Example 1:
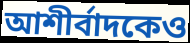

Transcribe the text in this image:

আশীর্বাদকেও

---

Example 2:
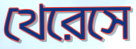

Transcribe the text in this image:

থেরেসে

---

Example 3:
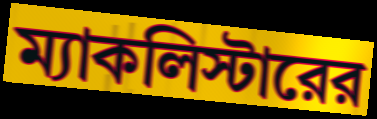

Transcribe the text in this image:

ম্যাকলিস্টারের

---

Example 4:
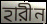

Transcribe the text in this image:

হারীন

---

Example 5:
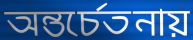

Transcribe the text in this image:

অন্তর্চেতনায়